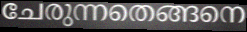
ചേരുന്നതെങ്ങനെ